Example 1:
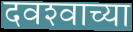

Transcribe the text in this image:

दवश्वाच्या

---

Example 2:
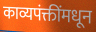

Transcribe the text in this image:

काव्यपंक्तींमधून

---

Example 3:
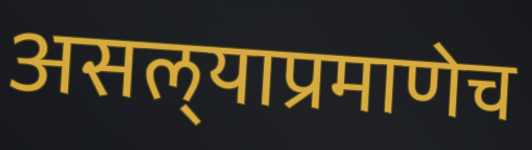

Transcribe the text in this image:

असल्याप्रमाणेच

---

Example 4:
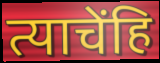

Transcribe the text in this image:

त्याचेंहि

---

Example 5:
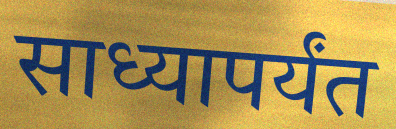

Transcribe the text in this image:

साध्यापर्यंत